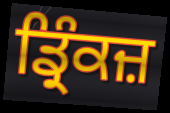
ਡ੍ਰਿੰਕਜ਼